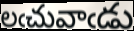
లఁచువాఁడు